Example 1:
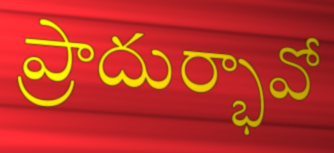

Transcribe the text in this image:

ప్రాదుర్భావో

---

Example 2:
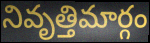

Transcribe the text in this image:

నివృత్తిమార్గం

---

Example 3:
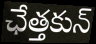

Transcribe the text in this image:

ఛేత్తకున్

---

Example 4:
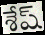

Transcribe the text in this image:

శేష్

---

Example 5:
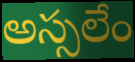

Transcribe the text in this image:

అస్సలేం